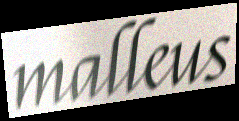
malleus